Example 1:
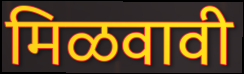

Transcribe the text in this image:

मिळवावी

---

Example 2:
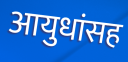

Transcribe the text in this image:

आयुधांसह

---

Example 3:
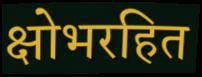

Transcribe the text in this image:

क्षोभरहित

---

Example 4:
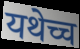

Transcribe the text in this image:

यथेच्च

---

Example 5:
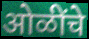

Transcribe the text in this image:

ओळींचे